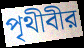
পৃথীবীর